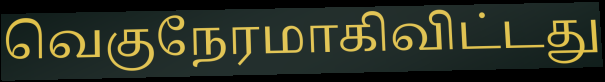
வெகுநேரமாகிவிட்டது